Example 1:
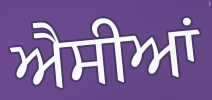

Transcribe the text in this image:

ਐਸੀਆਂ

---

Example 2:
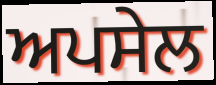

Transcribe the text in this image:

ਅਪਸੇਲ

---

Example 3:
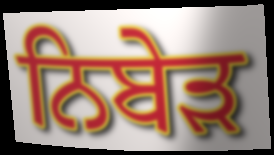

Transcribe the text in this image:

ਨਿਬੇੜ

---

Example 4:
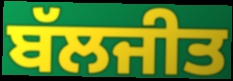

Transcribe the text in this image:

ਬੱਲਜੀਤ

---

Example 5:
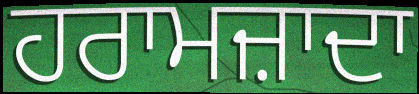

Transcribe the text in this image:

ਹਰਾਮਜ਼ਾਦਾ